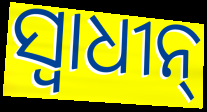
ସ୍ଵାଧୀନ୍